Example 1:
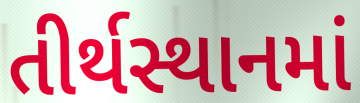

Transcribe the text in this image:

તીર્થસ્થાનમાં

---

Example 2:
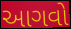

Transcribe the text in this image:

આગવો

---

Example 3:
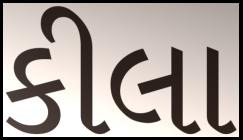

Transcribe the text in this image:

કીલા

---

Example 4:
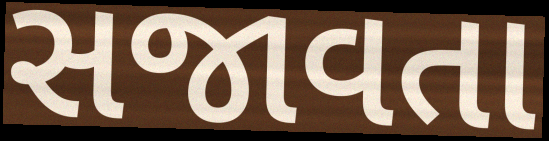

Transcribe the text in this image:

સજાવતા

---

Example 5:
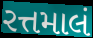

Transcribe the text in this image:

રત્તમાલં